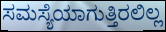
ಸಮಸ್ಯೆಯಾಗುತ್ತಿರಲಿಲ್ಲ